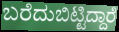
ಬರೆದುಬಿಟ್ಟಿದ್ದಾರೆ